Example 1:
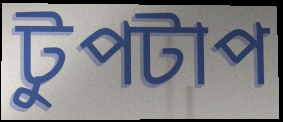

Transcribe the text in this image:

টুপটাপ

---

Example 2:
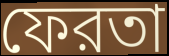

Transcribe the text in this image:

ফেরতা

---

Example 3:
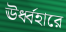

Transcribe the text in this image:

ঊর্ধ্বহারে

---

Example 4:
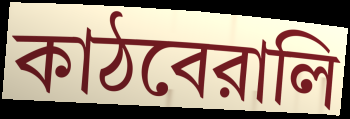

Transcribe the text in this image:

কাঠবেরালি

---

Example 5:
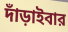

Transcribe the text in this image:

দাঁড়াইবার